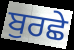
ਬੁਰਛੇ